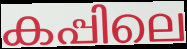
കപ്പിലെ